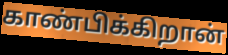
காண்பிக்கிறான்